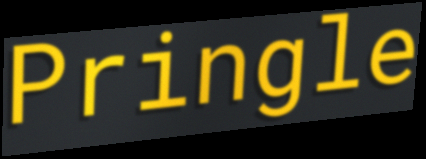
Pringle